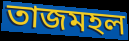
তাজমহল